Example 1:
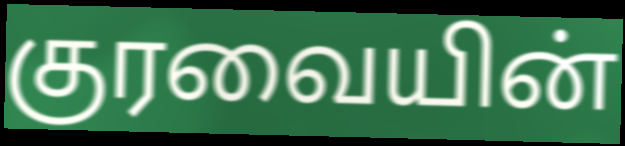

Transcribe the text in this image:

குரவையின்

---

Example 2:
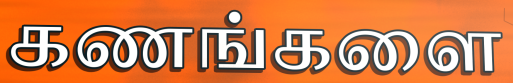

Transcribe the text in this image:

கணங்களை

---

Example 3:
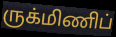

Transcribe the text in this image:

ருக்மிணிப்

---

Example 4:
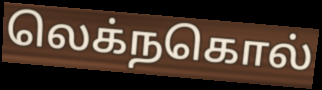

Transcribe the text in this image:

லெக்நகொல்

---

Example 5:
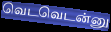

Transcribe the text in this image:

வெடவெடன்னு